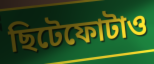
ছিটেফোটাও